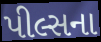
પીલ્સના